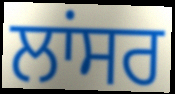
ਲਾਂਸਰ